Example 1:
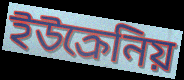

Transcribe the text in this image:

ইউক্রেনিয়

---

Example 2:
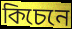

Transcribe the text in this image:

কিচেনে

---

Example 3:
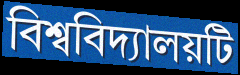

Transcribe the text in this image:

বিশ্ববিদ্যালয়টি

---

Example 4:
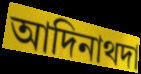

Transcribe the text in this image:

আদিনাথদা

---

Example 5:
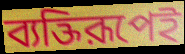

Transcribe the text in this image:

ব্যক্তিরূপেই